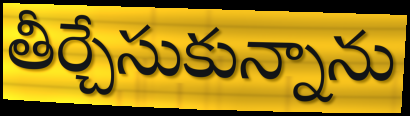
తీర్చేసుకున్నాను